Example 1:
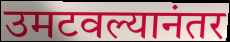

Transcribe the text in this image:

उमटवल्यानंतर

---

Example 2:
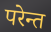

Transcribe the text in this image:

परेन्त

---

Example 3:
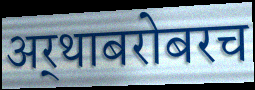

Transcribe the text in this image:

अर्थाबरोबरच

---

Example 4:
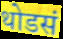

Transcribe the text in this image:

थोडसं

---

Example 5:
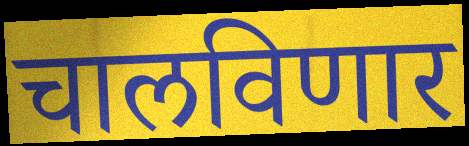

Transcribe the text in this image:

चालविणार